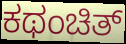
ಕಥಂಚಿತ್